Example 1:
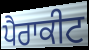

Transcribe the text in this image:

ਪੈਰਾਕੀਟ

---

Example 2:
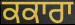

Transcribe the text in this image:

ਕਕਾਰਾ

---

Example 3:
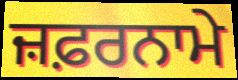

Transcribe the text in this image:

ਜ਼ਫ਼ਰਨਾਮੇ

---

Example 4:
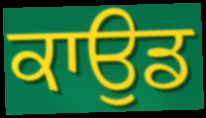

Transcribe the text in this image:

ਕਾਉਡ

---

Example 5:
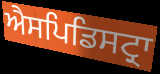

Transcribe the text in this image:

ਐਸਪਿਡਿਸਟ੍ਰਾ